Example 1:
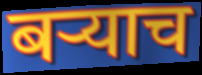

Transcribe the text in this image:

बर्‍याच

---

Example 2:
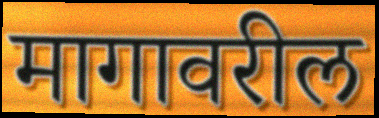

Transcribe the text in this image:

मागावरील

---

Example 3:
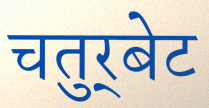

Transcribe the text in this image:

चतुर्बेट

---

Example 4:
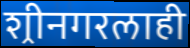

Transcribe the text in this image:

श्रीनगरलाही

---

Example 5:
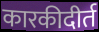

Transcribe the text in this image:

कारकीदीर्त